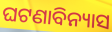
ଘଟଣାବିନ୍ୟାସ